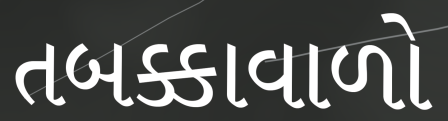
તબક્કાવાળો